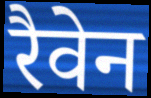
रैवेन